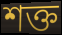
শক্ত